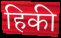
हिकी